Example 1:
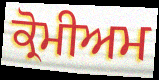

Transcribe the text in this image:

ਕ੍ਰੋਮੀਅਮ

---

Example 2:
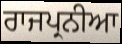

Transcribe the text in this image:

ਰਾਜਪ੍ਰਨੀਆ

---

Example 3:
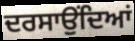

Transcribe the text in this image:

ਦਰਸਾਉਂਦਿਆਂ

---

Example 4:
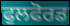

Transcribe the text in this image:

ਫੁਲਫੋਰਡ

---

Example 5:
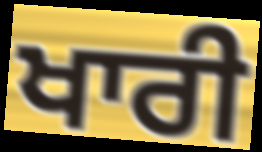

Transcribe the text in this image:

ਖਾਰੀ